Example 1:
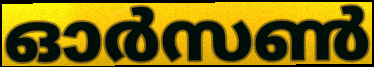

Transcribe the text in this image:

ഓർസൺ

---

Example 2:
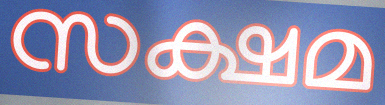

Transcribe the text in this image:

സക്ഷമ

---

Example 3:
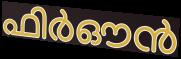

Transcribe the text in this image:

ഫിർഔൻ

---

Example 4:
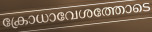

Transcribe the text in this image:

ക്രോധാവേശത്തോടെ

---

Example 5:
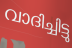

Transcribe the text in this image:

വാദിച്ചിട്ടു